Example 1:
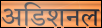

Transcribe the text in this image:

अडिशनल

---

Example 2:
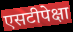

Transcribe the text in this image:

एसटीपेक्षा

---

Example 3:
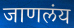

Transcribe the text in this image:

जाणलंय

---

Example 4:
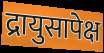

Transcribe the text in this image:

द्रायुसापेक्ष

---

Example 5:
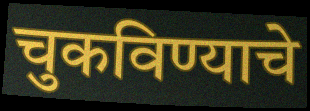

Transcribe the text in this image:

चुकविण्याचे